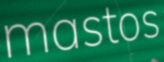
mastos